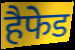
हैफेड